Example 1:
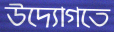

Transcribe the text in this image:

উদ্যোগতে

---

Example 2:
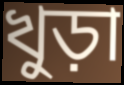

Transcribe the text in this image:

খুড়া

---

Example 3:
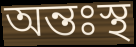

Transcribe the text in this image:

অন্তঃস্থ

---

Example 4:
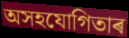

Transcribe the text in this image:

অসহযোগিতাৰ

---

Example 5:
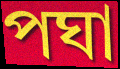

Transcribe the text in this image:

পঘা